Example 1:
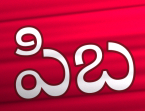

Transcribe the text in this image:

పిబ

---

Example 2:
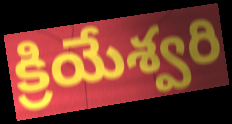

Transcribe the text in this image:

క్రియేశ్వరి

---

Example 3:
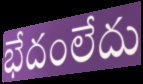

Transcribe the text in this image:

భేదంలేదు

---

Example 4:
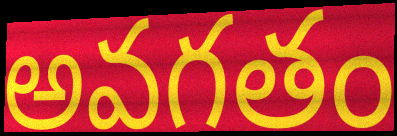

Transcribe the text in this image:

అవగతం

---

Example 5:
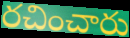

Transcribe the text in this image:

రచించారు